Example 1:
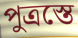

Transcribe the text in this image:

পুত্রস্তে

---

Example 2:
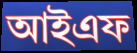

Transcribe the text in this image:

আইএফ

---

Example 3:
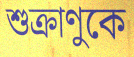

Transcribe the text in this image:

শুক্রাণুকে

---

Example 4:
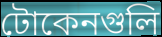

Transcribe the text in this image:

টোকেনগুলি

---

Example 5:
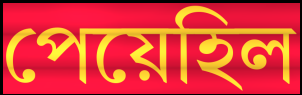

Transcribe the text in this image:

পেয়েহিল